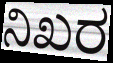
ನಿಖರ